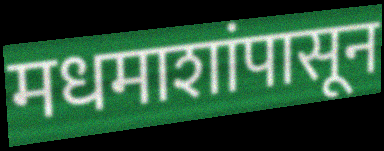
मधमाशांपासून